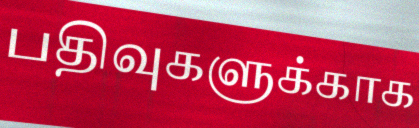
பதிவுகளுக்காக